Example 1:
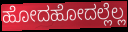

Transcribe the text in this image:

ಹೋದಹೋದಲ್ಲೆಲ್ಲ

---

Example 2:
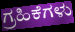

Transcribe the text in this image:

ಗ್ರಹಿಕೆಗಳು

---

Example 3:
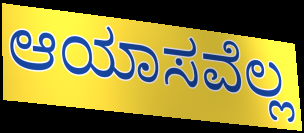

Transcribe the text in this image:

ಆಯಾಸವೆಲ್ಲ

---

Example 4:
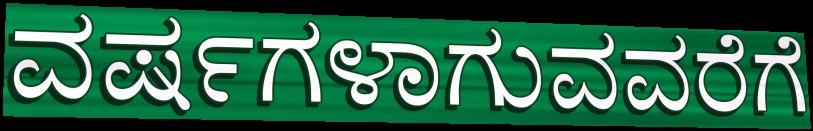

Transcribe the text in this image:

ವರ್ಷಗಳಾಗುವವರೆಗೆ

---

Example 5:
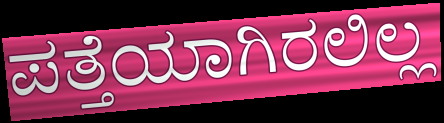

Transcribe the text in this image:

ಪತ್ತೆಯಾಗಿರಲಿಲ್ಲ